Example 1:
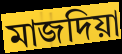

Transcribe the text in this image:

মাজদিয়া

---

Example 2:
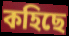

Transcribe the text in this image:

কহিছে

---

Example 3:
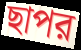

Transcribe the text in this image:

ছাপর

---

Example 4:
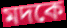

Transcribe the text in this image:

মদকে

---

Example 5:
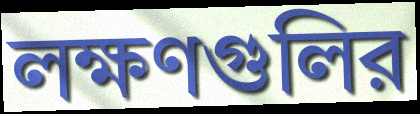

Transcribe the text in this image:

লক্ষণগুলির